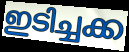
ഇടിച്ചക്ക